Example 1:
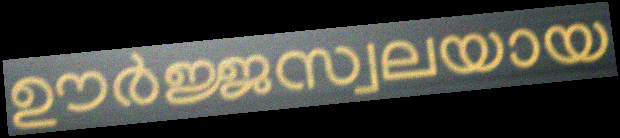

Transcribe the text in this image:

ഊർജ്ജസ്വലയായ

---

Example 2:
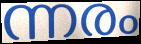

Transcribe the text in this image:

ന്നരം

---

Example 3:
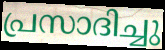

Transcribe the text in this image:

പ്രസാദിച്ചു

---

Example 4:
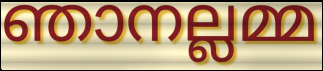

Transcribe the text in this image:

ഞാനല്ലമ്മ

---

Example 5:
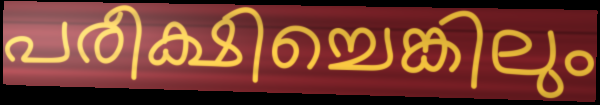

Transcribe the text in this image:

പരീക്ഷിച്ചെങ്കിലും